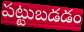
పట్టుబడడం